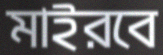
মাইরবে